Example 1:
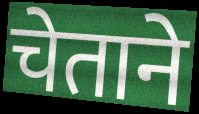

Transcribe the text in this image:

चेताने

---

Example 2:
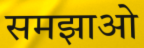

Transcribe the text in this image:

समझाओ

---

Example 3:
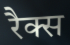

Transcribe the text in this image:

रैक्स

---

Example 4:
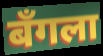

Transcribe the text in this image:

बँगला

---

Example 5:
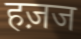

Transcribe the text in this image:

हज़ज